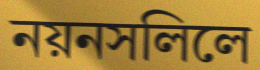
নয়নসলিলে